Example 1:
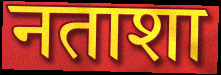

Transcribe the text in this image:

नताशा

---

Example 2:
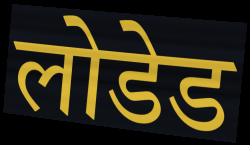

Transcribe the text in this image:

लोडेड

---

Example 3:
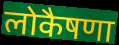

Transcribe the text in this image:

लोकैषणा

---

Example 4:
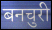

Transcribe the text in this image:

बनचुरी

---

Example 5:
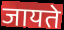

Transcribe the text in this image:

जायते